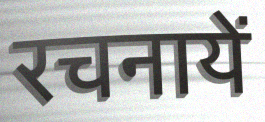
रचनायें